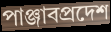
পাঞ্জাবপ্রদেশ